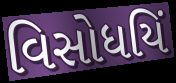
વિસોધયિં